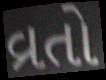
વ્રતો